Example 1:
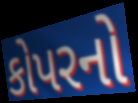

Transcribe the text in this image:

કોપરનો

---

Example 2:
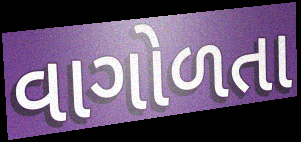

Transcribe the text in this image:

વાગોળતા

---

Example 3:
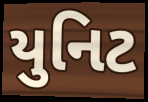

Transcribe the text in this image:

યુનિટ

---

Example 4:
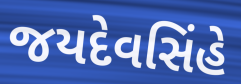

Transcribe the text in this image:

જયદેવસિંહે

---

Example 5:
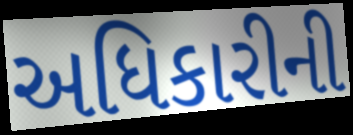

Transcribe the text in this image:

અધિકારીની